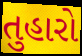
તુહારો